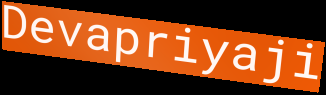
Devapriyaji